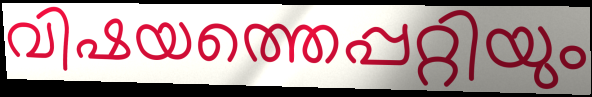
വിഷയത്തെപ്പറ്റിയും